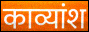
काव्यांश